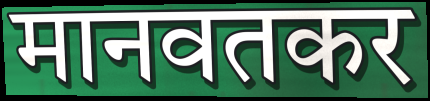
मानवतकर